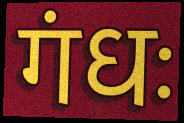
गंधः